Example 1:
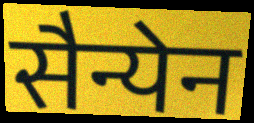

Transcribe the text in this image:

सैन्येन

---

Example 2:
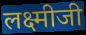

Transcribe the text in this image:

लक्ष्मीजी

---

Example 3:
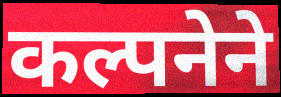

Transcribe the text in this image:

कल्पनेने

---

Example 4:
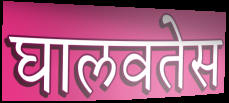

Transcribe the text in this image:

घालवतेस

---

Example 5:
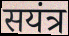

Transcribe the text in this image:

सयंत्र